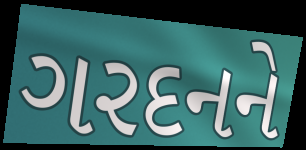
ગરદનને